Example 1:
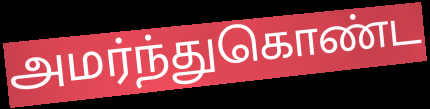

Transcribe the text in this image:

அமர்ந்துகொண்ட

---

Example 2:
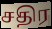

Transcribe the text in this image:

சதிர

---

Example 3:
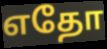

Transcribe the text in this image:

எதோ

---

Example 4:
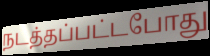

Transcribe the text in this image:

நடத்தப்பட்டபோது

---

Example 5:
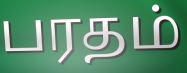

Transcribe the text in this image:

பரதம்